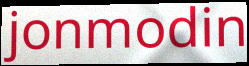
jonmodin